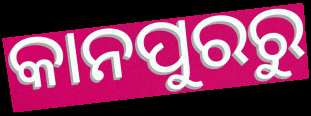
କାନପୁରରୁ